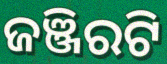
ଜଞ୍ଜିରଟି